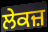
ਲੇਕਜ਼